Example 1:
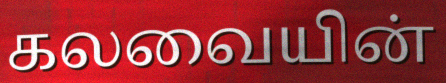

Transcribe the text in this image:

கலவையின்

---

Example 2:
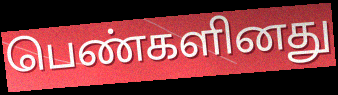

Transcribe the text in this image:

பெண்களினது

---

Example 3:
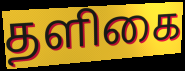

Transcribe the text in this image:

தளிகை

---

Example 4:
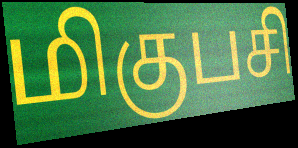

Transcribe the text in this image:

மிகுபசி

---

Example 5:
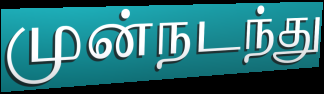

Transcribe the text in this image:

முன்நடந்து